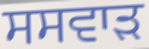
ਸਸਵਾੜ